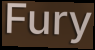
Fury